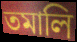
তমালি